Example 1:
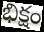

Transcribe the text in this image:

భిక్షం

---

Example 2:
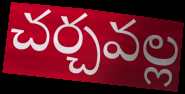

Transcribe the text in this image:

చర్చవల్ల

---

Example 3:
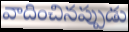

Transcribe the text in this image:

వాదించినప్పుడు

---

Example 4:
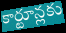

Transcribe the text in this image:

కార్టూన్లకు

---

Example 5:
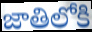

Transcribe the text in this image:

జాతిలోకి